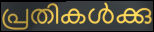
പ്രതികൾക്കു